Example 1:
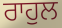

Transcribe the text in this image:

ਰਾਹੁਲ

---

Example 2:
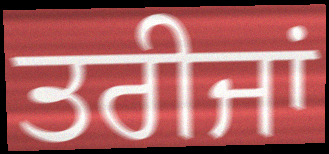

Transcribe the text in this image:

ਤਰੀਜਾਂ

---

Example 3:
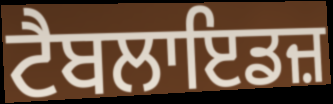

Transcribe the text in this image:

ਟੈਬਲਾਇਡਜ਼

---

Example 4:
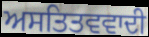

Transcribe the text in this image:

ਅਸਤਿਤਵਵਾਦੀ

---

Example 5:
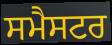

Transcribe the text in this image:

ਸਮੈਸਟਰ